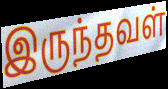
இருந்தவள்